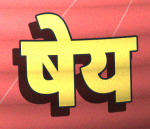
षेय